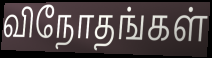
விநோதங்கள்